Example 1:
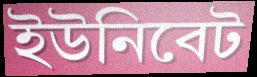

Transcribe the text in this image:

ইউনিবেট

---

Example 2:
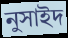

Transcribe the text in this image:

নুসাইদ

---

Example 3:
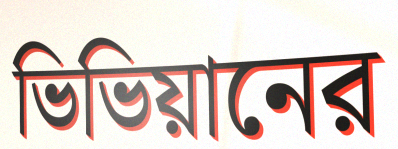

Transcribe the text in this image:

ভিভিয়ানের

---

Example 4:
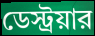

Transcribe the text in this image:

ডেস্ট্রয়ার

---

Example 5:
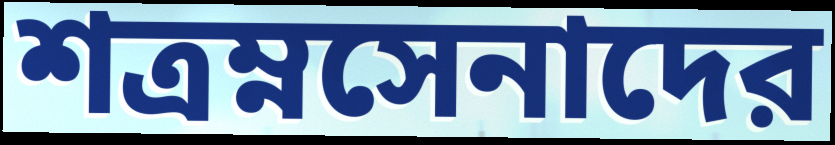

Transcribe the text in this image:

শত্রম্নসেনাদের